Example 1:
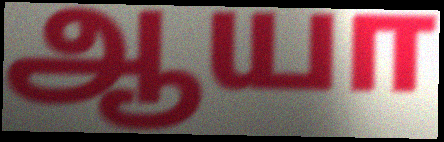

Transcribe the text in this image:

ஆயா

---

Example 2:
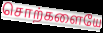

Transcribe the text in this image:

சொற்களையே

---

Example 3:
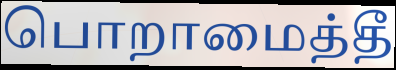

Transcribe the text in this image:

பொறாமைத்தீ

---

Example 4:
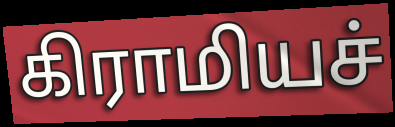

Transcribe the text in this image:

கிராமியச்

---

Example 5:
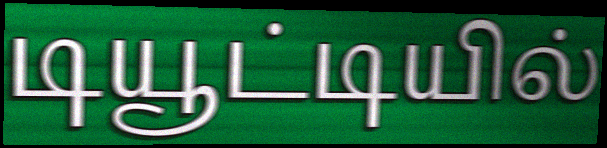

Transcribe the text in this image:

டியூட்டியில்